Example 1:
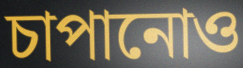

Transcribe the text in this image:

চাপানোও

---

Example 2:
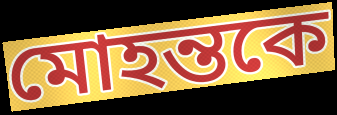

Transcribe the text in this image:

মোহন্তকে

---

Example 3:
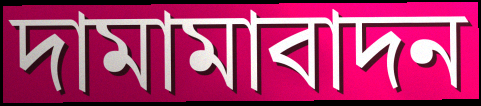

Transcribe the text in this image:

দামামাবাদন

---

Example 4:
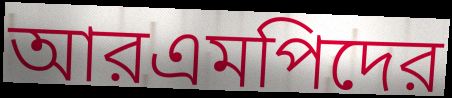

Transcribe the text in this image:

আরএমপিদের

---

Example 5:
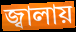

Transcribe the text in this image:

জ্বালায়